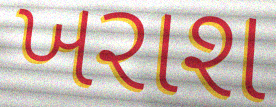
ખરાશ